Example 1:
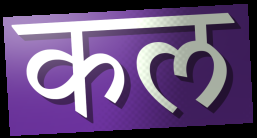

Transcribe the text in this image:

कल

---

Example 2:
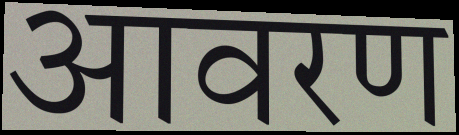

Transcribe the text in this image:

आवरण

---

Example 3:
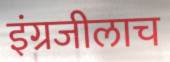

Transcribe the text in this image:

इंग्रजीलाच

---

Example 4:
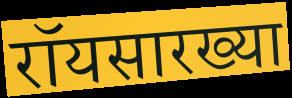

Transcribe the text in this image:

रॉयसारख्या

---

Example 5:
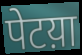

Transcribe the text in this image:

पेटय़ा